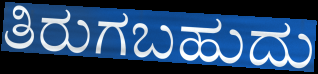
ತಿರುಗಬಹುದು